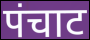
पंचाट